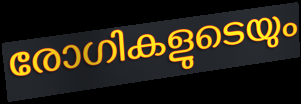
രോഗികളുടെയും